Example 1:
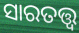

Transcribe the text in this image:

ସାରତତ୍ତ୍ଵ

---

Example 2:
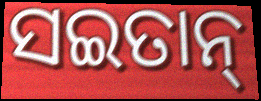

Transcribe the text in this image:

ସଇତାନ୍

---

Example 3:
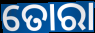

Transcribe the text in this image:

ତୋରା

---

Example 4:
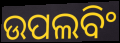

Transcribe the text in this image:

ଉପଲବିଂ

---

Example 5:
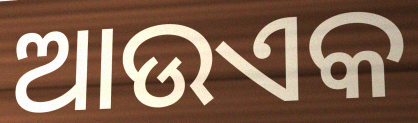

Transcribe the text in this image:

ଆଉଏକ